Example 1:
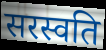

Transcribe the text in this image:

सरस्वति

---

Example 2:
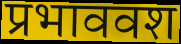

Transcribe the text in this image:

प्रभाववश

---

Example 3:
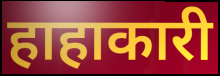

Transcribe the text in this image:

हाहाकारी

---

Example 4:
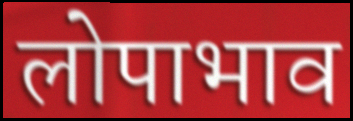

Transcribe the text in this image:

लोपाभाव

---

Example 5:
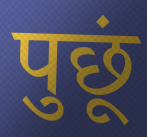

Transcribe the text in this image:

पुछूं